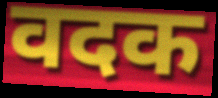
वदक